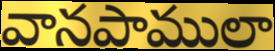
వానపాములా